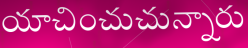
యాచించుచున్నారు